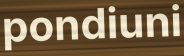
pondiuni